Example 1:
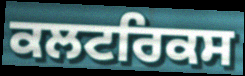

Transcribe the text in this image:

ਕਲਟਰਿਕਸ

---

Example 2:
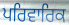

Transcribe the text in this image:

ਪਰਿਵਾਰਿਕ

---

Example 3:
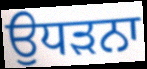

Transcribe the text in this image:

ਉਧੜਨਾ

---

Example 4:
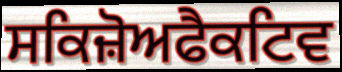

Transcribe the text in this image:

ਸਕਿਜ਼ੋਅਫੈਕਟਿਵ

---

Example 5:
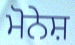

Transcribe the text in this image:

ਮੋਨੇਸ਼